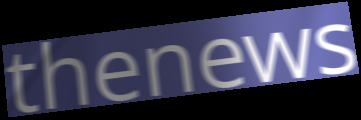
thenews